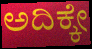
ಅದಿಕ್ಕೇ